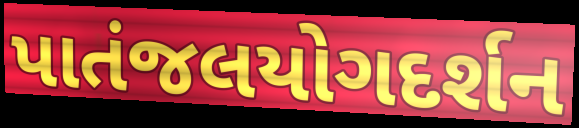
પાતંજલયોગદર્શન